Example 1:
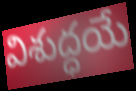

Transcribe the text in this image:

విశుద్ధయే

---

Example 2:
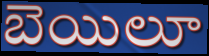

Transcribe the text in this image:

బెయిలూ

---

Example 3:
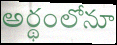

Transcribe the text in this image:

అర్థంలోనూ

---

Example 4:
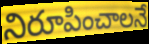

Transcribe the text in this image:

నిరూపించాలనే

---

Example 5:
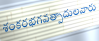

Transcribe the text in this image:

శంకరభగవత్పాదులవారు